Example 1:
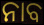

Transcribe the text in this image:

ନାବ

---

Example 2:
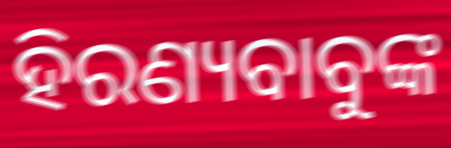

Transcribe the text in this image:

ହିରଣ୍ୟବାବୁଙ୍କ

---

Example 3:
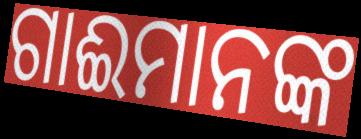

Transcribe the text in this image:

ଗାଈମାନଙ୍କ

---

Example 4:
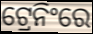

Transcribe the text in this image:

ଟ୍ରେନିଂରେ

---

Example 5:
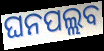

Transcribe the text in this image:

ଘନପଲ୍ଲବ